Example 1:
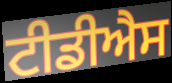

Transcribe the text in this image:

ਟੀਡੀਐਸ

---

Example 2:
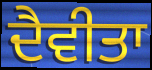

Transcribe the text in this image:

ਦੈਵੀਤਾ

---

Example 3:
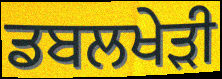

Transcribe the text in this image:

ਡਬਲਖੇੜੀ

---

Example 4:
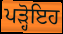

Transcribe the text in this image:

ਪੜ੍ਹੋਇਹ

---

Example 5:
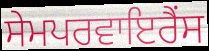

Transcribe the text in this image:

ਸੇਮਪਰਵਾਇਰੈਂਸ